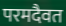
परमदैवत